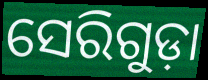
ସେରିଗୁଡ଼ା